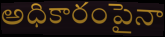
అధికారంపైనా